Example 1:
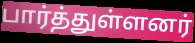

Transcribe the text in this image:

பார்த்துள்ளனர்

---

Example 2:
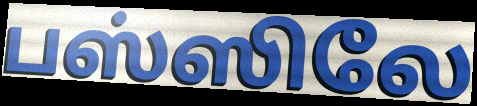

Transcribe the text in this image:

பஸ்ஸிலே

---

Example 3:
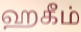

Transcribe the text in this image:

ஹகீம்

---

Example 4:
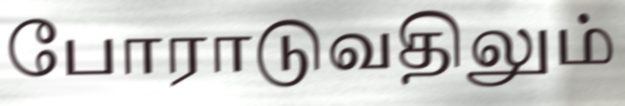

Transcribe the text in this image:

போராடுவதிலும்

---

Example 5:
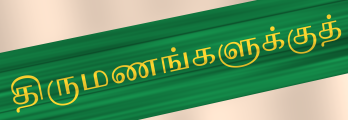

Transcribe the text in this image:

திருமணங்களுக்குத்